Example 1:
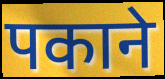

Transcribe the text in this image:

पकाने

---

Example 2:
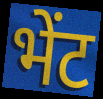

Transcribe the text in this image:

भेंट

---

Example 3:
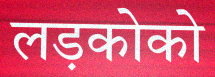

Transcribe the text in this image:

लड़कोको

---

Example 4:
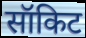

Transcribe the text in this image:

सॉकिट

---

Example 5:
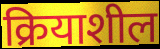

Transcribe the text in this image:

क्रियाशील